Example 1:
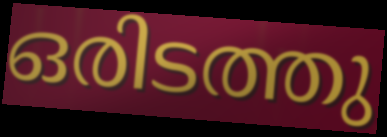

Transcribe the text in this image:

ഒരിടത്തു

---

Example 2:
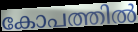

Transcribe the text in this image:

കോപത്തിൽ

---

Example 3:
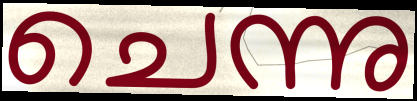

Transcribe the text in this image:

ചെന്നു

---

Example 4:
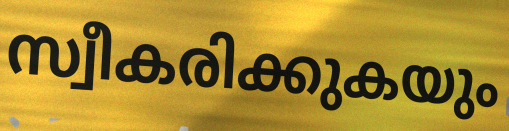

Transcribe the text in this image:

സ്വീകരിക്കുകയും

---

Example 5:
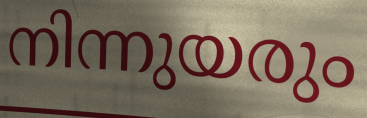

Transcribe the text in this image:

നിന്നുയരും